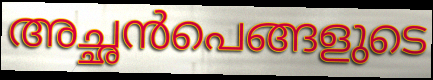
അച്ഛൻപെങ്ങളുടെ